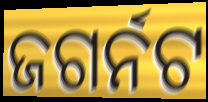
ଜଗର୍ନଟ